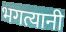
भगत्यानी